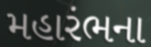
મહારંભના